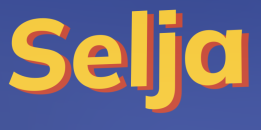
Selja